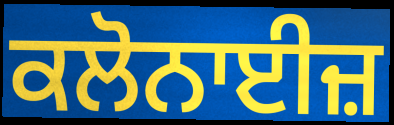
ਕਲੋਨਾਈਜ਼